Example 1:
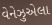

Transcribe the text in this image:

વેનેઝુએલા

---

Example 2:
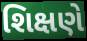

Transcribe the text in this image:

શિક્ષણે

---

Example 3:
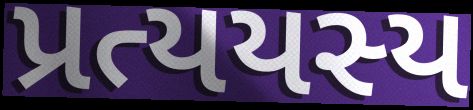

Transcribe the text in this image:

પ્રત્યયસ્ય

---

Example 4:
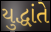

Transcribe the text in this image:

યુદ્ધાંતે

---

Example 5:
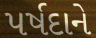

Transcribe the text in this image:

પર્ષદાને